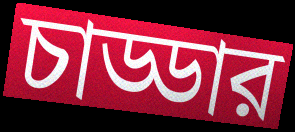
চাড্ডার